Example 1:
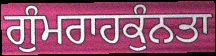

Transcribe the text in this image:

ਗੁੰਮਰਾਹਕੁੰਨਤਾ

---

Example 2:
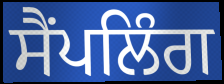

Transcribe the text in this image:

ਸੈਂਪਲਿੰਗ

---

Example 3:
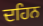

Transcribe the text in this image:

ਦਹਿਨ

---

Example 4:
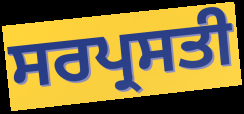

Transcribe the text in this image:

ਸਰਪ੍ਰਸਤੀ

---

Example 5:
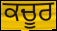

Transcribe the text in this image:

ਕਚੂਰ